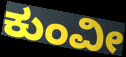
ಕುಂವೀ